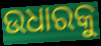
ଉଧାରକୁ